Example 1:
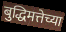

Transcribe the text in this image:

बुद्धिमत्तेच्या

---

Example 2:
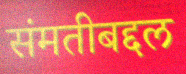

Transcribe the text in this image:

संमतीबद्दल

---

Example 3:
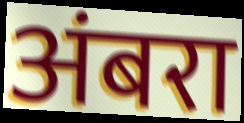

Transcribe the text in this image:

अंबरा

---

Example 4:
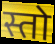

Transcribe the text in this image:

स्तो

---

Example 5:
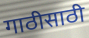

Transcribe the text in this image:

गाठीसाठी